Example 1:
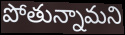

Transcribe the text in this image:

పోతున్నామని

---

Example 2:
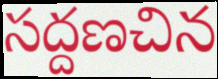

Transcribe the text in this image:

సద్దణచిన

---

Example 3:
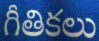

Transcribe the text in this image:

గీతికలు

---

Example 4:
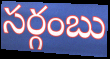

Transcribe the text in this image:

సర్గంబు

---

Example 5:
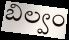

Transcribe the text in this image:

బిల్వం